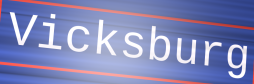
Vicksburg